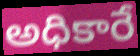
అధికారే